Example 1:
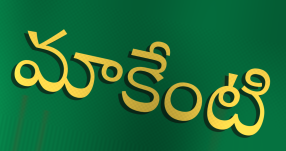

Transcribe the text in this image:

మాకేంటి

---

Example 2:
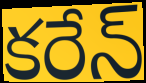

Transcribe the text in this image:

కరేన్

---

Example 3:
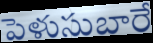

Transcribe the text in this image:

పెళుసుబారే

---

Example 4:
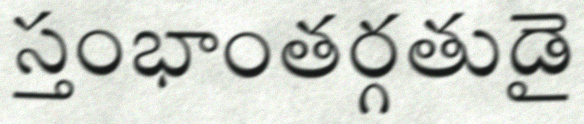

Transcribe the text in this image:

స్తంభాంతర్గతుడై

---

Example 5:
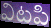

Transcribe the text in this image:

విటపి